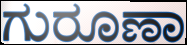
ಗುರೂಣಾ